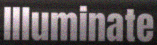
Illuminate